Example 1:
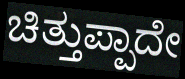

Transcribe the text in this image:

ಚಿತ್ತುಪ್ಪಾದೇ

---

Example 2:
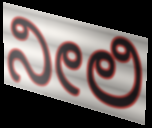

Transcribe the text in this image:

ನೀಲಿ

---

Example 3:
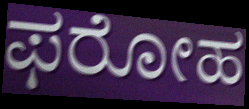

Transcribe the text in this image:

ಫರೋಹ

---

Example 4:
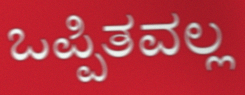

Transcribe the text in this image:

ಒಪ್ಪಿತವಲ್ಲ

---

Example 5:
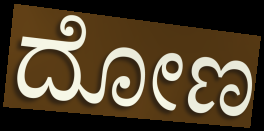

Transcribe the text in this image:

ದೋಣ